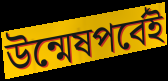
উন্মেষপর্বেই